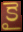
కై